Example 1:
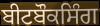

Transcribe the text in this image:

ਬੀਟਬੌਕਸਿੰਗ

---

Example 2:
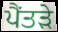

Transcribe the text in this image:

ਪੈਂਤੜੇ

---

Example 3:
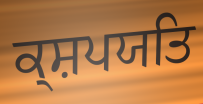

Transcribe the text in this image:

ਕ੍ਸ਼ਪਯਤਿ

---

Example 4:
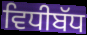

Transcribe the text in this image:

ਵਿਧੀਬੱਧ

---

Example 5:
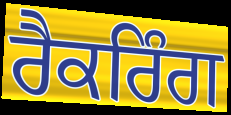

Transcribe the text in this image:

ਰੈਕਰਿੰਗ